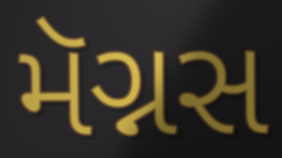
મૅગ્નસ